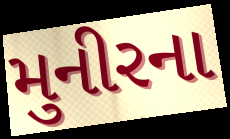
મુનીરના